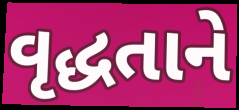
વૃદ્ધતાને